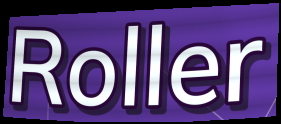
Roller